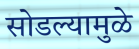
सोडल्यामुळे